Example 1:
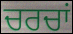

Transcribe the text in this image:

ਚਰਚਾਂ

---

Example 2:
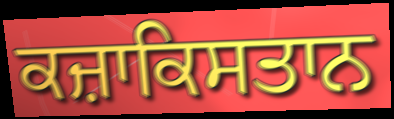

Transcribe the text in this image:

ਕਜ਼ਾਕਿਸਤਾਨ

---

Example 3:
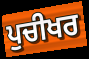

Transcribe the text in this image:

ਪੁਚੀਖਰ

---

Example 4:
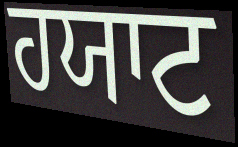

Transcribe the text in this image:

ਹਯਾਟ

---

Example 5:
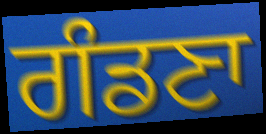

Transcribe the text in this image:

ਗੰਡਣਾ